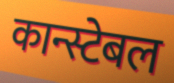
कान्स्टेबल